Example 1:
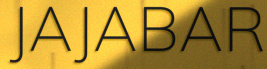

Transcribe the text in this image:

JAJABAR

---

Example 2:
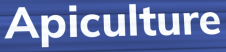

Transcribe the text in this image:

Apiculture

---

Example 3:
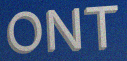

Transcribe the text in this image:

ONT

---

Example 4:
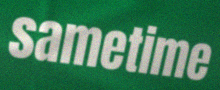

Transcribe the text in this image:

sametime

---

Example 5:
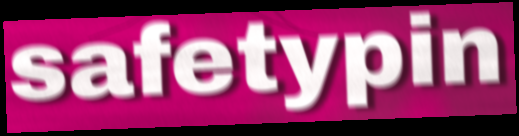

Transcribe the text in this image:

safetypin